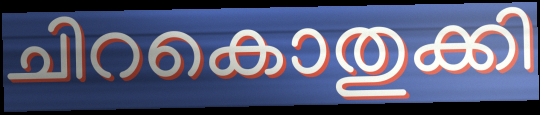
ചിറകൊതുക്കി